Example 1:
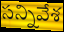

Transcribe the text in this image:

సన్నివేశ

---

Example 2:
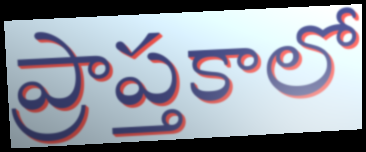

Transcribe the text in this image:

ప్రాప్తకాలో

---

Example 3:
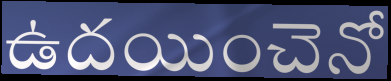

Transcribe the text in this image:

ఉదయించెనో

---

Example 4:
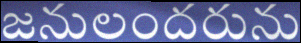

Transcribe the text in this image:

జనులందరును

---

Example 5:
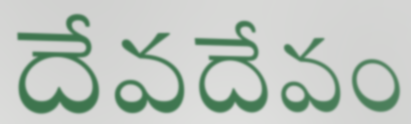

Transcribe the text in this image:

దేవదేవం